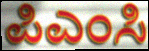
ಪಿಎಂಸಿ